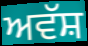
ਅਵੱਸ਼